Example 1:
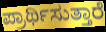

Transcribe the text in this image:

ಪ್ರಾರ್ಥಿಸುತ್ತಾರೆ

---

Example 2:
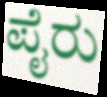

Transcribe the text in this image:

ಪೈರು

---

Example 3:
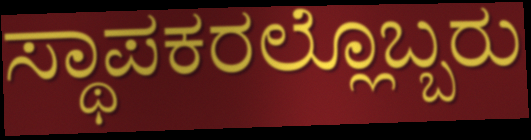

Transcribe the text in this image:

ಸ್ಥಾಪಕರಲ್ಲೊಬ್ಬರು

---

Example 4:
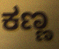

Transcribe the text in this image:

ಕಣ್ಣ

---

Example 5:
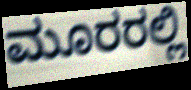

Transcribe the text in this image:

ಮೂರರಲ್ಲಿ